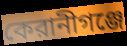
কেরানীগঞ্জে